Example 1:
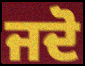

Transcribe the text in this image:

ਜਦੋ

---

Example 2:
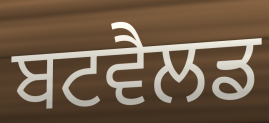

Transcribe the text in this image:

ਬਟਵੈਲਡ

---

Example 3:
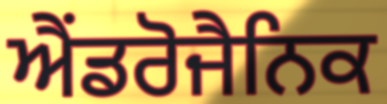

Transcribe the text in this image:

ਐਂਡਰੋਜੈਨਿਕ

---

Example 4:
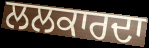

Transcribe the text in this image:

ਲਲਕਾਰਦਾ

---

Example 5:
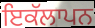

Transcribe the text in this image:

ਇਕੱਲਾਪਨ